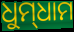
ଧୁମ୍‌ଧାମ